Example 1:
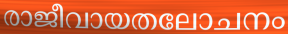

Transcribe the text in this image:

രാജീവായതലോചനം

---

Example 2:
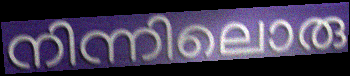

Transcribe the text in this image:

നിന്നിലൊരു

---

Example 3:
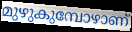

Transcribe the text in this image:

മുഴുകുമ്പോഴാണ്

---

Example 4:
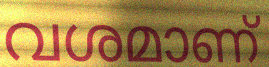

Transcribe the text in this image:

വശമാണ്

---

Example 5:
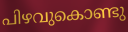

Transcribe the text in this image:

പിഴവുകൊണ്ടു